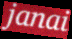
janai